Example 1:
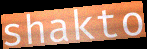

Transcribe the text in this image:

shakto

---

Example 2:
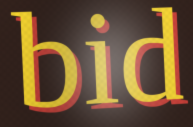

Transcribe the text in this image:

bid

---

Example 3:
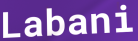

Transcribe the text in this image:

Labani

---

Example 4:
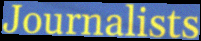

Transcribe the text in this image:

Journalists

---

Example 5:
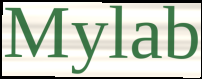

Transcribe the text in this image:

Mylab